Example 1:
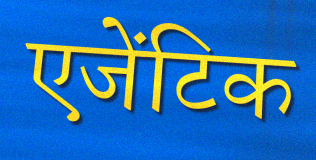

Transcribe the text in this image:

एजेंटिक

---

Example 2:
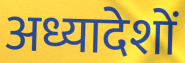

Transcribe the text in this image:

अध्यादेशों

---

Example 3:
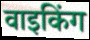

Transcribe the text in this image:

वाइकिंग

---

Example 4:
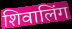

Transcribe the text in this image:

शिवालिंग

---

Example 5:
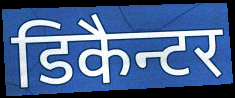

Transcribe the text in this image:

डिकैन्टर